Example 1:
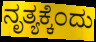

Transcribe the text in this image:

ನೃತ್ಯಕ್ಕೆಂದು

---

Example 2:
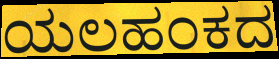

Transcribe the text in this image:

ಯಲಹಂಕದ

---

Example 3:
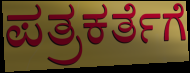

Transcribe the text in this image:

ಪತ್ರಕರ್ತೆಗೆ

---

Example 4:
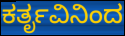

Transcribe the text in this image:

ಕರ್ತೃವಿನಿಂದ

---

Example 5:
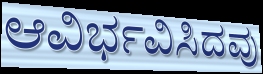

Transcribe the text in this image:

ಆವಿರ್ಭವಿಸಿದವು